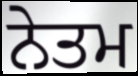
ਨੇਤਮ